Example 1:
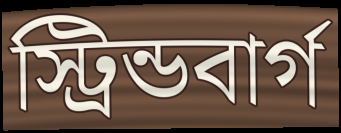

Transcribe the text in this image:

স্ট্রিন্ডবার্গ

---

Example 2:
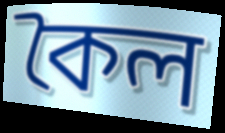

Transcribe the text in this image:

কৈল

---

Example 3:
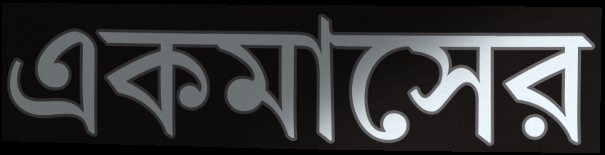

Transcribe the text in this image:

একমাসের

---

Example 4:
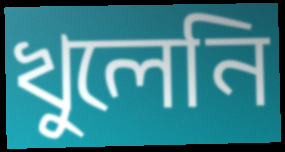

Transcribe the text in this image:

খুলেনি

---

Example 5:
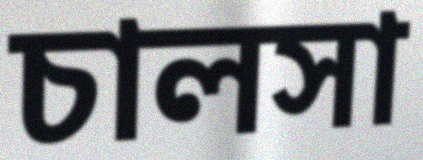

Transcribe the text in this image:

চালসা